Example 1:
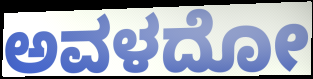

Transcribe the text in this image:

ಅವಳದೋ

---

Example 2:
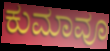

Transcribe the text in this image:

ಕುಮಾವೂ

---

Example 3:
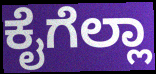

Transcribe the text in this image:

ಕೈಗೆಲ್ಲಾ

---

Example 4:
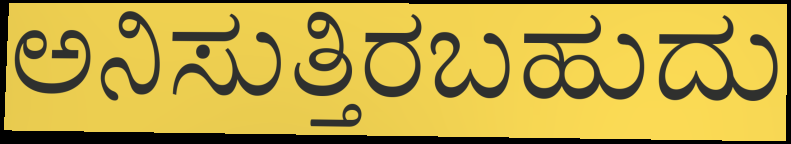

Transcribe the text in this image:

ಅನಿಸುತ್ತಿರಬಹುದು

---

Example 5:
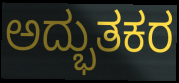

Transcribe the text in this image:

ಅದ್ಭುತಕರ